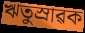
ঋতুস্ৰাৱক